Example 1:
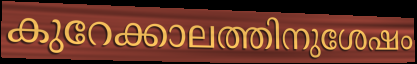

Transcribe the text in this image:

കുറേക്കാലത്തിനുശേഷം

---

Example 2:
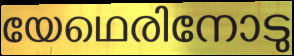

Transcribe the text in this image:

യേഥെരിനോടു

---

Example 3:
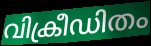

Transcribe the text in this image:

വിക്രീഡിതം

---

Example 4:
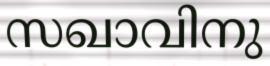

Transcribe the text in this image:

സഖാവിനു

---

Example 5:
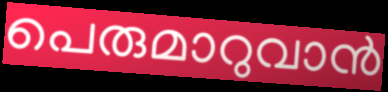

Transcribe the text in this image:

പെരുമാറുവാൻ